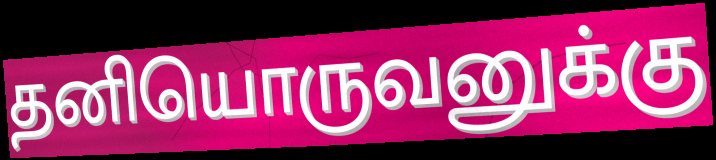
தனியொருவனுக்கு